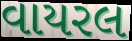
વાયરલ